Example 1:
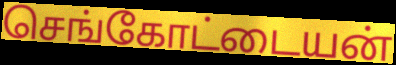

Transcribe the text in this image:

செங்கோட்டையன்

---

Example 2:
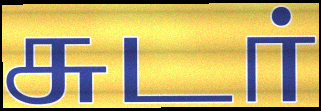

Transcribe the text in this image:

சுடர்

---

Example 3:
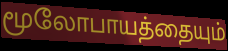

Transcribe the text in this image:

மூலோபாயத்தையும்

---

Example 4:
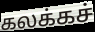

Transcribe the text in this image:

கலக்கச்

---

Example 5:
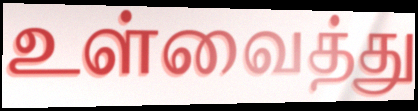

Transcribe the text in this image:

உள்வைத்து